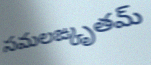
సమలఙ్కృతమ్